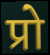
प्रो